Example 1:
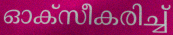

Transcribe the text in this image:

ഓക്സീകരിച്ച്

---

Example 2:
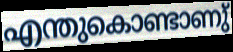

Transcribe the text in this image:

എന്തുകൊണ്ടാണു്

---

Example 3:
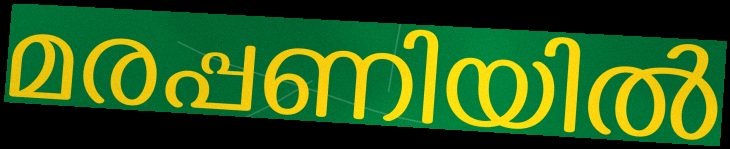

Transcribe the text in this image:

മരപ്പണിയിൽ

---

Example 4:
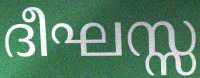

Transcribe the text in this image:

ദീഘസ്സ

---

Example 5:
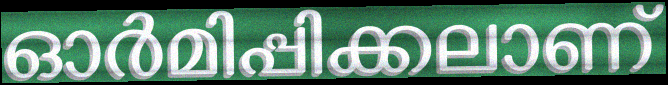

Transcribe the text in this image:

ഓർമിപ്പിക്കലാണ്